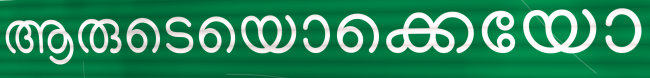
ആരുടെയൊക്കെയോ